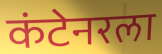
कंटेनरला